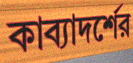
কাব্যাদর্শের